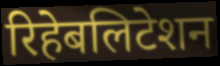
रिहेबलिटेशन